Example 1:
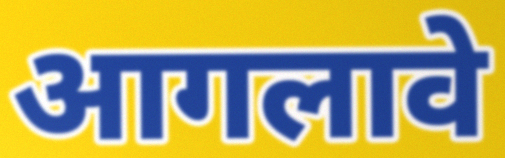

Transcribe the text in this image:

आगलावे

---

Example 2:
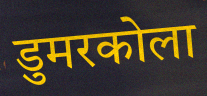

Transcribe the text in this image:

डुमरकोला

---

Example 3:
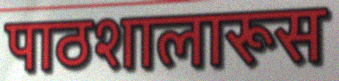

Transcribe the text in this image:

पाठशालारूस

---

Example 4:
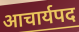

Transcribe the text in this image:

आचार्यपद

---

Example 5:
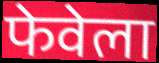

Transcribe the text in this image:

फेवेला